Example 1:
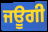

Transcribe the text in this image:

ਜਊਗੀ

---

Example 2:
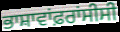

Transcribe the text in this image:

ਭਾਸ਼ਾਵਾਂਫ਼ਰਾਂਸੀਸੀ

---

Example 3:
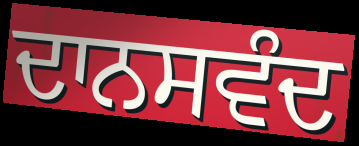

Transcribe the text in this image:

ਦਾਨਸਵੰਦ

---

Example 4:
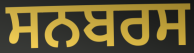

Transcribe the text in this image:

ਸਨਬਰਸ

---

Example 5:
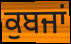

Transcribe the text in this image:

ਕੁਬਜਾਂ